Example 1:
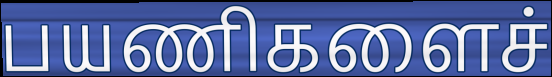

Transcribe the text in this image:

பயணிகளைச்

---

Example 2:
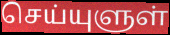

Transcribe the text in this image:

செய்யுளுள்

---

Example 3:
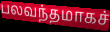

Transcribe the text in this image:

பலவந்தமாகச்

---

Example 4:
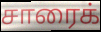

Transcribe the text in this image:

சாரைக்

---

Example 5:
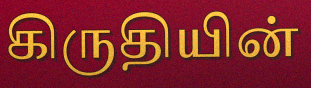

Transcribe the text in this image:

கிருதியின்